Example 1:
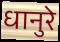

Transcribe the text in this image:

धानुरे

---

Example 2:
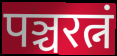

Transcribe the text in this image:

पञ्चरत्नं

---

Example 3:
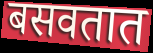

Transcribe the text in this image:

बसवतात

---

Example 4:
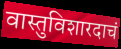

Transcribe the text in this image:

वास्तुविशारदाचं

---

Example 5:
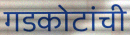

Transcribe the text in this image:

गडकोटांची